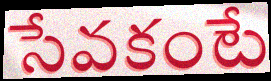
సేవకంటే